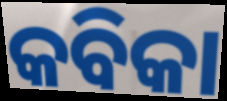
କବିକା